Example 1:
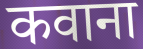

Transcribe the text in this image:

कवाना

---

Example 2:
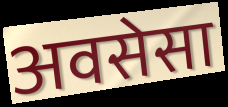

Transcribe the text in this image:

अवसेसा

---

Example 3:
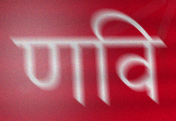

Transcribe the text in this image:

णवि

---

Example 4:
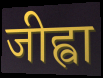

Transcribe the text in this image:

जीह्वा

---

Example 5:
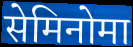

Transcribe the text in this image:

सेमिनोमा